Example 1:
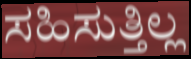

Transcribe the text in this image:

ಸಹಿಸುತ್ತಿಲ್ಲ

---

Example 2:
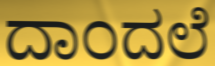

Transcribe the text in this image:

ದಾಂದಲೆ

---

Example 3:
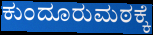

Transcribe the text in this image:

ಕುಂದೂರುಮಠಕ್ಕೆ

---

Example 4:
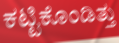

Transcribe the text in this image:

ಕಟ್ಟಿಕೊಂಡಿತ್ತು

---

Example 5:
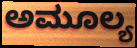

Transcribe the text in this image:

ಅಮೂಲ್ಯ